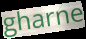
gharne